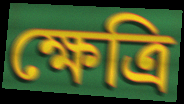
ক্ষেত্রি